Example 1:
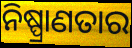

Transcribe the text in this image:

ନିଷ୍ପ୍ରାଣତାର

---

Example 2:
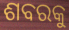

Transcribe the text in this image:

ଶବରକୁ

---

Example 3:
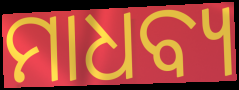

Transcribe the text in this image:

ମାଧବ୍ୟ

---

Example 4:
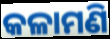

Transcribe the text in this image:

କଳାମଣି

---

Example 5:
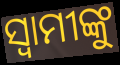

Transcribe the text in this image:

ସ୍ୱାମୀଙ୍କୁ